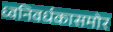
ध्वनिवर्धकासमोर